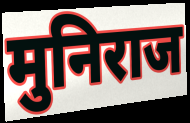
मुनिराज